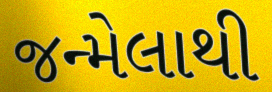
જન્મેલાથી